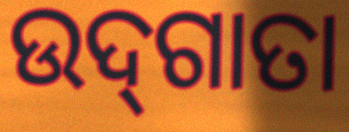
ଉଦ୍‌ଗାତା